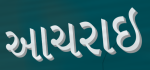
આચરાઇ